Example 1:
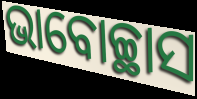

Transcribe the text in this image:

ଭାବୋଚ୍ଛାସ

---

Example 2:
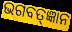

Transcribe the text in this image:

ଭଗବତ୍‌ଜ୍ଞାନ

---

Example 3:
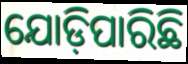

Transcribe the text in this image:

ଯୋଡ଼ିପାରିଛି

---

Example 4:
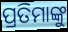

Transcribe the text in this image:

ପ୍ରତିମାଙ୍କୁ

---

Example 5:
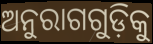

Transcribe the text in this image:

ଅନୁରାଗଗୁଡ଼ିକୁ